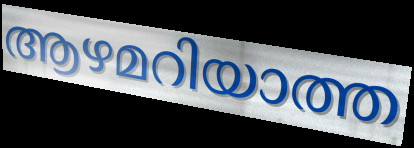
ആഴമറിയാത്ത